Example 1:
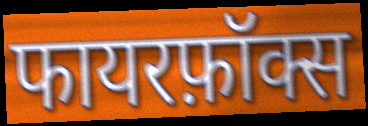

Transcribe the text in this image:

फायरफ़ॉक्स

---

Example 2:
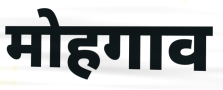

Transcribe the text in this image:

मोहगाव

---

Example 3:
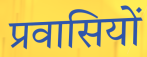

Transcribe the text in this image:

प्रवासियों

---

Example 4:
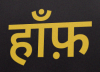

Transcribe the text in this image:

हाँफ़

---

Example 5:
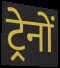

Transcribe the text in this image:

ट्रेनों